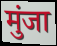
मुंजा